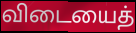
விடையைத்